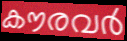
കൗരവർ